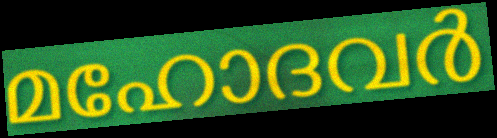
മഹോദവർ